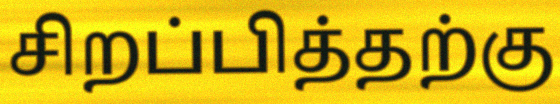
சிறப்பித்தற்கு